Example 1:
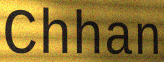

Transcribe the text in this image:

Chhan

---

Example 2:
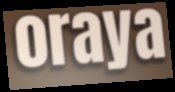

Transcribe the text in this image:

oraya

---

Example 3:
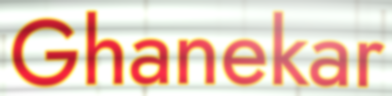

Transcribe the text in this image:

Ghanekar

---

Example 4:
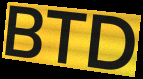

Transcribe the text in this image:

BTD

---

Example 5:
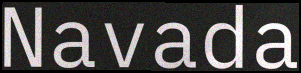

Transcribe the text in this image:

Navada